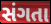
સંગતા